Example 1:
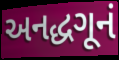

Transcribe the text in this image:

અનદ્ધગૂનં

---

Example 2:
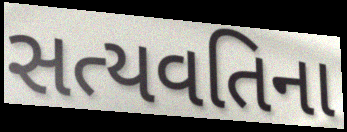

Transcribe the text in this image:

સત્યવતિના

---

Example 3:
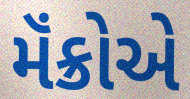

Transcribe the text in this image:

મૅંક્રોએ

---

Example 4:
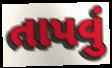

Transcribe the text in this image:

તાપવું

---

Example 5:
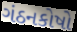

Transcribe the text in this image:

ગંઠનકોષો